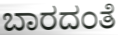
ಬಾರದಂತೆ